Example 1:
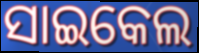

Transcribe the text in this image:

ସାଇକେଲ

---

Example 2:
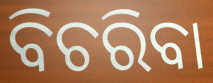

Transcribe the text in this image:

ବିଚରିବା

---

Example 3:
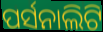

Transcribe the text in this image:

ପର୍ସନାଲିଟି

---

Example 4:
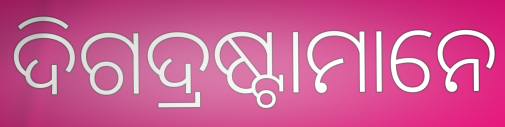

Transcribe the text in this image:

ଦିଗଦ୍ରଷ୍ଟାମାନେ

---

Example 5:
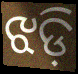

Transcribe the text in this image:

ଝଡ଼ି